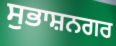
ਸੁਭਾਸ਼ਨਗਰ